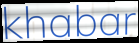
khabar